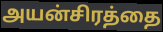
அயன்சிரத்தை